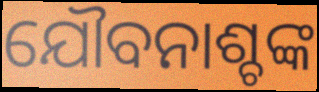
ଯୌବନାଶ୍ଚଙ୍କ